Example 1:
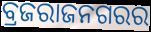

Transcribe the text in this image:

ବ୍ରଜରାଜନଗରର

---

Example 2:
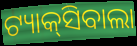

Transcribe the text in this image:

ଟ୍ୟାକ୍‌ସିବାଲା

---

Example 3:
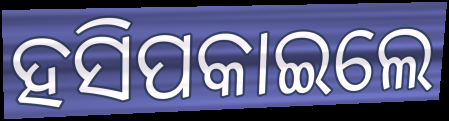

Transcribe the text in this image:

ହସିପକାଇଲେ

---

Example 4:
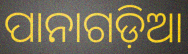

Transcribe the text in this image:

ପାନାଗଡ଼ିଆ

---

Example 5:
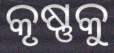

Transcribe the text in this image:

କୃଷ୍ଣକୁ